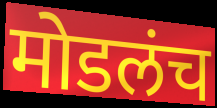
मोडलंच